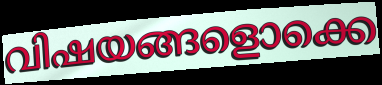
വിഷയങ്ങളൊക്കെ